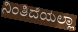
ನಿಂತಿದೆಯಲ್ಲಾ